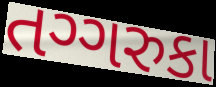
તગ્ગરુકા